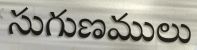
సుగుణములు